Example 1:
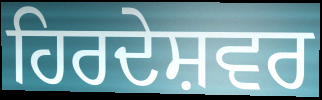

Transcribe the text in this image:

ਹਿਰਦੇਸ਼ਵਰ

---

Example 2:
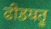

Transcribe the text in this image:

ਫੀਡਥਰੂ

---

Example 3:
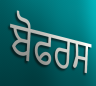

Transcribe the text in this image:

ਬੋਫਰਸ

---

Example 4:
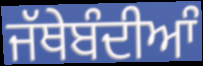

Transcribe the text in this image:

ਜੱਥੇਬੰਦੀਆੰ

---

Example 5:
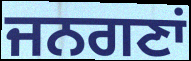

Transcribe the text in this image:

ਜਨਗਣਾਂ